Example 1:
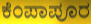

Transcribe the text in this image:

ಕೆಂಪಾಪೂರ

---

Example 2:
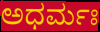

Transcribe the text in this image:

ಅಧರ್ಮಃ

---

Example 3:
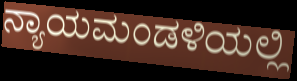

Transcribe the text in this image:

ನ್ಯಾಯಮಂಡಳಿಯಲ್ಲಿ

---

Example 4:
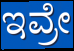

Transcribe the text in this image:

ಇವ್ರೇ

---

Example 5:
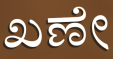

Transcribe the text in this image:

ಖಣೇ